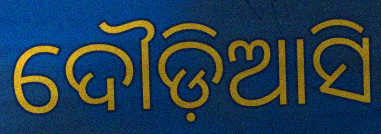
ଦୌଡ଼ିଆସି